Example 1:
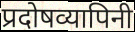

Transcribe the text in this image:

प्रदोषव्यापिनी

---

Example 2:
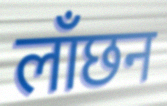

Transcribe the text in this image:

लाँछन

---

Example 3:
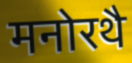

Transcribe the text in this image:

मनोरथै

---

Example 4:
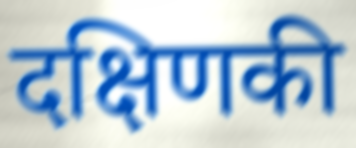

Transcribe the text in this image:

दक्षिणकी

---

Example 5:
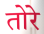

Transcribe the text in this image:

तोरे